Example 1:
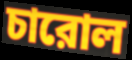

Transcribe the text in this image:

চারোল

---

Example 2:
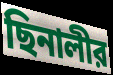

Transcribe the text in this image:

ছিনালীর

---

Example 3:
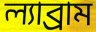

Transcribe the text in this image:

ল্যাব্রাম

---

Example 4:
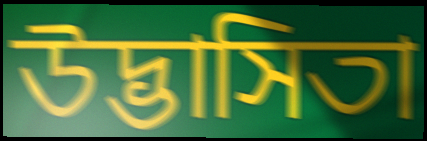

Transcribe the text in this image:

উদ্ভাসিতা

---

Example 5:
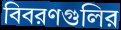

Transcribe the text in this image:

বিবরণগুলির